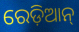
ରେଡ଼ିଆନ୍